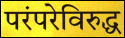
परंपरेविरुद्ध